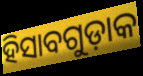
ହିସାବଗୁଡ଼ାକ